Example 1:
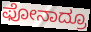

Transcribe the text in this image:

ಫೋನಾದ್ರೂ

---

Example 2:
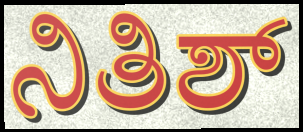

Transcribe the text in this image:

ನಿತಿಶ್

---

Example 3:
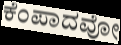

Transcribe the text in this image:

ಕೆಂಪಾದವೋ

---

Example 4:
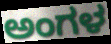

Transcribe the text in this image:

ಅಂಗಳ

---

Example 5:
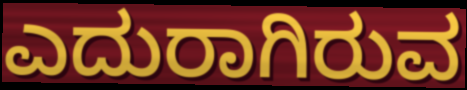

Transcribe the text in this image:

ಎದುರಾಗಿರುವ